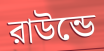
রাউন্ডে